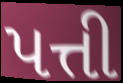
પત્તી